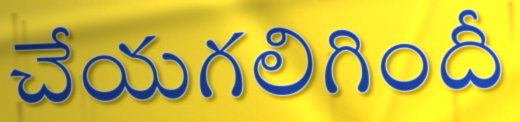
చేయగలిగిందీ